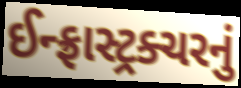
ઈન્ફ્રાસ્ટ્રક્ચરનું